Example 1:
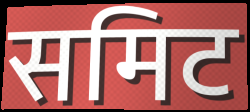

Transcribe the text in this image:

समिट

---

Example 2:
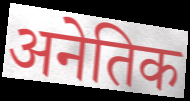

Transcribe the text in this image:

अनेतिक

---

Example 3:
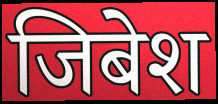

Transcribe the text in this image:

जिबेश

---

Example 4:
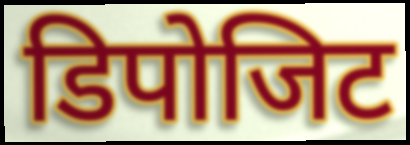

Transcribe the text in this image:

डिपोजिट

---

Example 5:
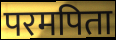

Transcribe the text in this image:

परमपिता